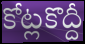
కోట్లకొద్దీ